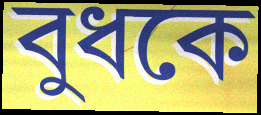
বুধকে